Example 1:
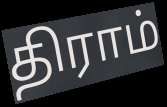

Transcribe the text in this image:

திராம்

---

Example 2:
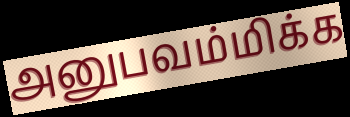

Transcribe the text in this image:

அனுபவம்மிக்க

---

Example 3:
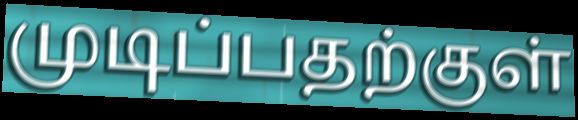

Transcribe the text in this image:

முடிப்பதற்குள்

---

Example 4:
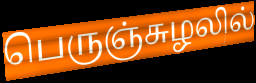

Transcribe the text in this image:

பெருஞ்சுழலில்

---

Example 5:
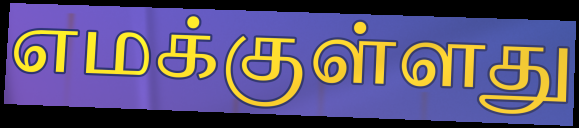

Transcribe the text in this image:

எமக்குள்ளது